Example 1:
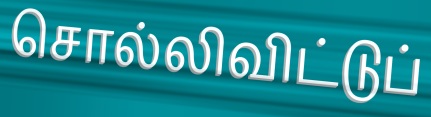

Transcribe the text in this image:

சொல்லிவிட்டுப்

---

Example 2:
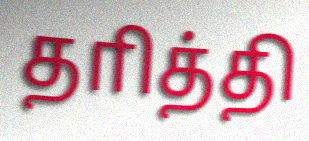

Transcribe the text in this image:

தரித்தி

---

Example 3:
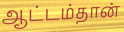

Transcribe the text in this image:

ஆட்டம்தான்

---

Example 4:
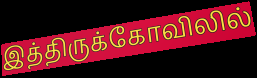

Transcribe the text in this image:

இத்திருக்கோவிலில்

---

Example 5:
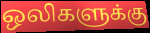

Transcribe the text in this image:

ஒலிகளுக்கு